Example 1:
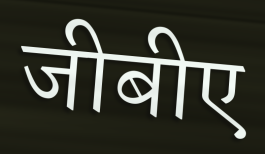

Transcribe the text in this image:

जीबीए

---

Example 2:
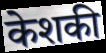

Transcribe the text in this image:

केशकी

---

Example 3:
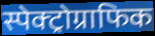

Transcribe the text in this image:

स्पेक्ट्रोग्राफिक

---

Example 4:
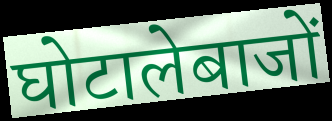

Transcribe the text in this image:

घोटालेबाजों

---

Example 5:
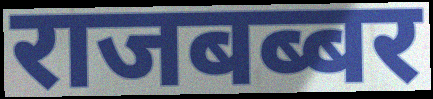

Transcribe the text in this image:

राजबब्बर